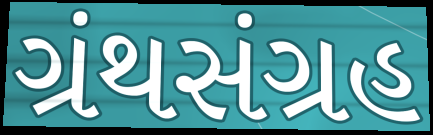
ગ્રંથસંગ્રહ